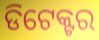
ଡିଟେକ୍ଟର